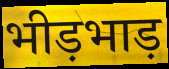
भीड़भाड़